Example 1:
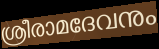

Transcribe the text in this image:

ശ്രീരാമദേവനും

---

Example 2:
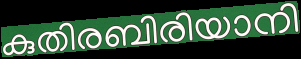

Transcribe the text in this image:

കുതിരബിരിയാനി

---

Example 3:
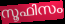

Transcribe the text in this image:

സൂഫിസം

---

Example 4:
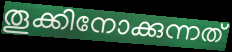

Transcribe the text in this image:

തൂക്കിനോക്കുന്നത്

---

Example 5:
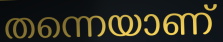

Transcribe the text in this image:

തന്നെയാണ്